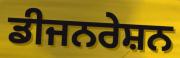
ਡੀਜਨਰੇਸ਼ਨ